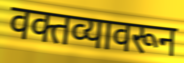
वक्तव्यावरून